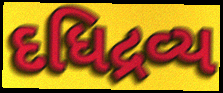
દધિદ્રવ્ય